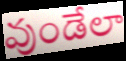
వుండేలా